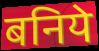
बनिये